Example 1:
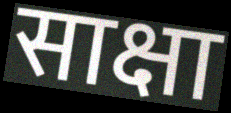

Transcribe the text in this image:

साक्षा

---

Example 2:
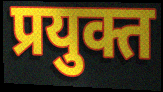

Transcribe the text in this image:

प्रयुक्त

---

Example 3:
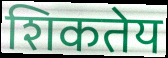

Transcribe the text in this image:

शिकतेय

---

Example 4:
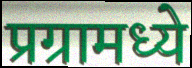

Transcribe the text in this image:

प्रग्रामध्ये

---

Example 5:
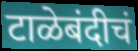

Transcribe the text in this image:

टाळेबंदीचं